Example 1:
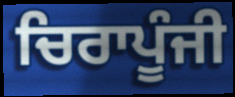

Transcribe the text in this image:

ਚਿਰਾਪੂੰਜੀ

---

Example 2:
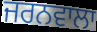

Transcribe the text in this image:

ਜਰਨਵਾਲਾ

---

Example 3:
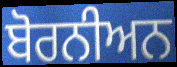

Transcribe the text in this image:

ਬੋਰਨੀਅਨ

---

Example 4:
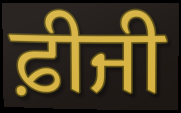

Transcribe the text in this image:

ਫ਼ੀਜੀ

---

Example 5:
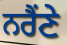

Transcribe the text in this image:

ਨਰੈਂਣੇ